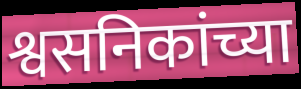
श्वसनिकांच्या